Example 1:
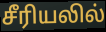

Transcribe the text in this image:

சீரியலில்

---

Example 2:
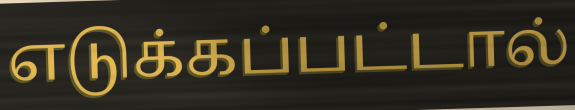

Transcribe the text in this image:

எடுக்கப்பட்டால்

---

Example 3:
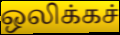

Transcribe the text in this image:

ஒலிக்கச்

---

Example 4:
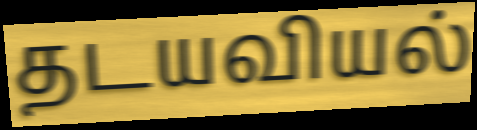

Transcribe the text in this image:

தடயவியல்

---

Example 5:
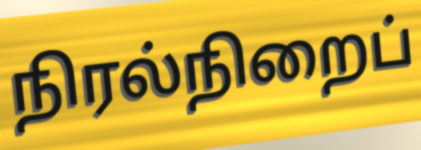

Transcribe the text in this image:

நிரல்நிறைப்